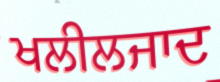
ਖਲੀਲਜਾਦ